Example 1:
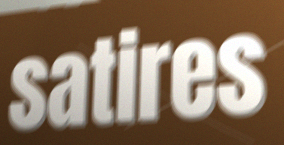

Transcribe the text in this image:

satires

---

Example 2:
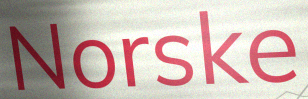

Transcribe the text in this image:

Norske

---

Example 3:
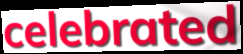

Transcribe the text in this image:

celebrated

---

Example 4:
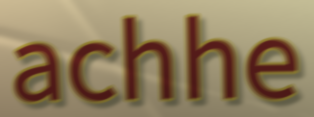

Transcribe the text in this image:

achhe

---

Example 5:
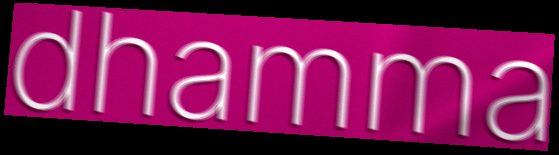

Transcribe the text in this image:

dhamma